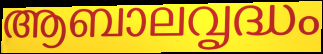
ആബാലവൃദ്ധം